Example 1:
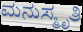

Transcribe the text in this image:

ಮನುಸ್ಮೃತಿ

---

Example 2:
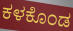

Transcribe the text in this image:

ಕಳಕೊಂಡ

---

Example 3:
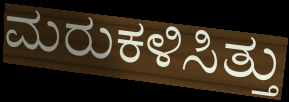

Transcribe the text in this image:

ಮರುಕಳಿಸಿತ್ತು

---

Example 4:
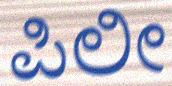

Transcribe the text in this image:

ಪಿಲೀ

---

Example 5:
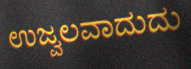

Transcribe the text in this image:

ಉಜ್ವಲವಾದುದು